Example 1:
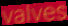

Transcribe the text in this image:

valves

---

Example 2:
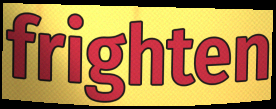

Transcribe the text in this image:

frighten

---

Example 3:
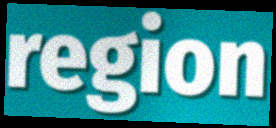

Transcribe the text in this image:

region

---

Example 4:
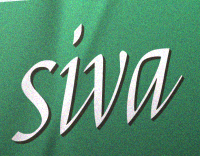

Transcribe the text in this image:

siva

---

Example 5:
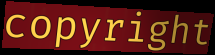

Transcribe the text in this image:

copyright